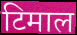
टिमाल